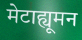
मेटाह्यूमन